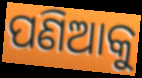
ପଣିଆକୁ